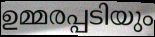
ഉമ്മരപ്പടിയും